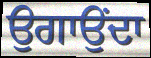
ਉਗਾਉਂਦਾ